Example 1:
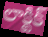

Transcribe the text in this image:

లాక్టిక్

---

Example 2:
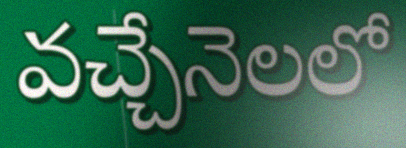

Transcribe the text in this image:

వచ్చేనెలలో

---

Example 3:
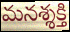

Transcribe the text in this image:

మనశ్శక్తి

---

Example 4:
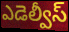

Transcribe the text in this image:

ఎడెల్వీస్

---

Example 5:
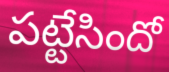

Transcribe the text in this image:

పట్టేసిందో